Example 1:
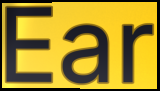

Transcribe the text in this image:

Ear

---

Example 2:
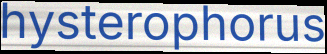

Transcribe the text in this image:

hysterophorus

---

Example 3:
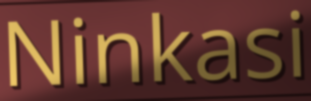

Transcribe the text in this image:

Ninkasi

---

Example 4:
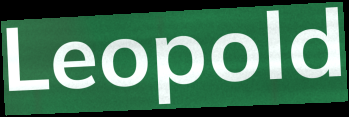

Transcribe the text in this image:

Leopold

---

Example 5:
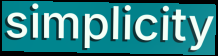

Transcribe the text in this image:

simplicity